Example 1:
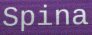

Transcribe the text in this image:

Spina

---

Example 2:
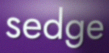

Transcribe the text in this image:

sedge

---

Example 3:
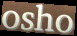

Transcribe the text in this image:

osho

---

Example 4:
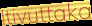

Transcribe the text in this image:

Itivuttaka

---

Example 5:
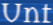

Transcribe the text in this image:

Unt